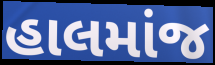
હાલમાંજ